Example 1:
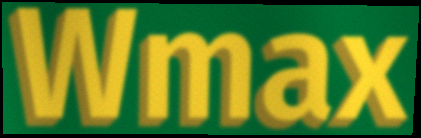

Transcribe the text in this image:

Wmax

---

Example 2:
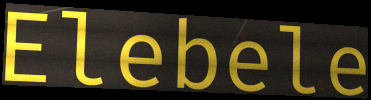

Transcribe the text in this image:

Elebele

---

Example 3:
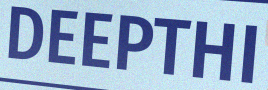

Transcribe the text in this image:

DEEPTHI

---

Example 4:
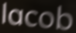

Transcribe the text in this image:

Iacob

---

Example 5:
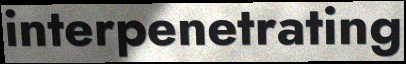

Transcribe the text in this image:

interpenetrating